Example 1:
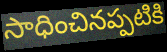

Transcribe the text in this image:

సాధించినప్పటికి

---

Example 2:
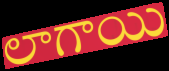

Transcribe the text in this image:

లాగాయి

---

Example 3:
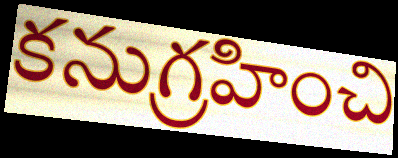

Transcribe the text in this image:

కనుగ్రహించి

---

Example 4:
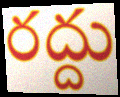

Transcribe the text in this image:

రద్దు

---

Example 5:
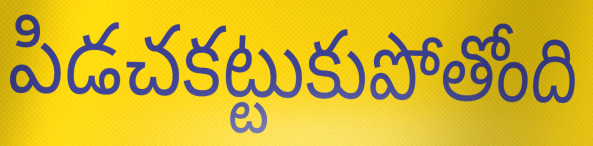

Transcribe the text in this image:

పిడచకట్టుకుపోతోంది